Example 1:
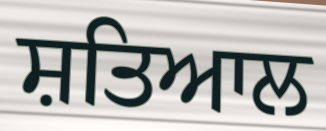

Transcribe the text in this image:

ਸ਼ਤਿਆਲ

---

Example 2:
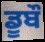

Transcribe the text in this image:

ਡੂਬੌ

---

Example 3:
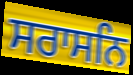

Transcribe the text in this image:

ਸਰਾਸਨਿ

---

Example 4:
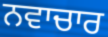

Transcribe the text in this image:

ਨਵਾਚਾਰ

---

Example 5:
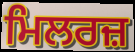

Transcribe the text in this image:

ਮਿਲਰਜ਼